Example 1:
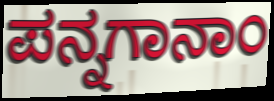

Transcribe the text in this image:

ಪನ್ನಗಾನಾಂ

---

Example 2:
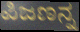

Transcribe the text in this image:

ಪಿಜಣನ್ನ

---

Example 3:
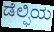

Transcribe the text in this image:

ಡೆಲ್ಫಿಯ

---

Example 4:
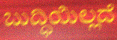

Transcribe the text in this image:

ಬುದ್ಧಿಯಿಲ್ಲದೆ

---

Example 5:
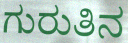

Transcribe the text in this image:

ಗುರುತಿನ